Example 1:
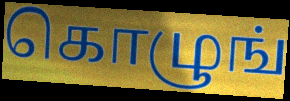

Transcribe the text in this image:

கொழுங்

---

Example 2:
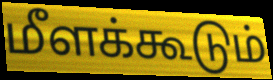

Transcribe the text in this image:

மீளக்கூடும்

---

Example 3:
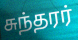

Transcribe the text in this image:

சுந்தரர்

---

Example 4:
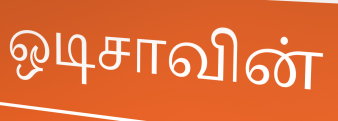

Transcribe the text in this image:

ஒடிசாவின்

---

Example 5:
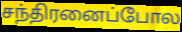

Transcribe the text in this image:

சந்திரனைப்போல